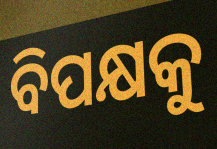
ବିପକ୍ଷକୁ